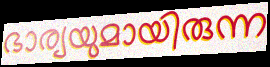
ഭാര്യയുമായിരുന്ന